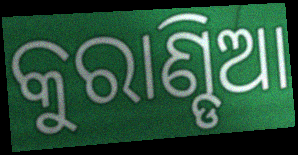
କୁରାଣ୍ଡିଆ